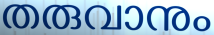
തരുവാനും